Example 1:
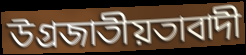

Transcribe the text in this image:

উগ্রজাতীয়তাবাদী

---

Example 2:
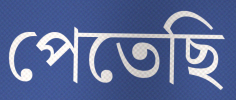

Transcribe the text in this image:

পেতেছি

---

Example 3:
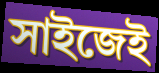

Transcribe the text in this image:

সাইজেই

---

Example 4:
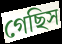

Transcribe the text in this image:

গেছিস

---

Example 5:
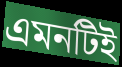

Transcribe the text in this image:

এমনটিই